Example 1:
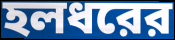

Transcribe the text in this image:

হলধরের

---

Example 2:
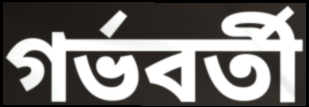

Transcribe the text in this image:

গর্ভবর্তী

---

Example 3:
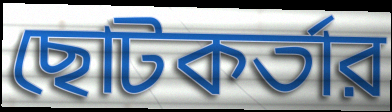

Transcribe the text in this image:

ছোটকর্তার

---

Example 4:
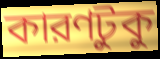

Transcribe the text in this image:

কারণটুকু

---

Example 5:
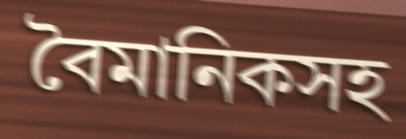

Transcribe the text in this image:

বৈমানিকসহ